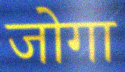
जोगा